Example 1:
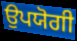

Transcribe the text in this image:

ਉਪਯੋਗੀ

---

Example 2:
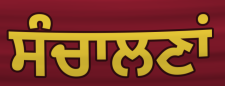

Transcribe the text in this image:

ਸੰਚਾਲਣਾਂ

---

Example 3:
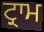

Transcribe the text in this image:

ਟ੍ਰਾਮ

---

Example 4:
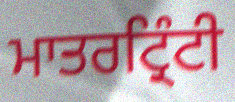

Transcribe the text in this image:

ਮਾਤਰਟ੍ਰਿੰਟੀ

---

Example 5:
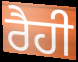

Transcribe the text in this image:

ਰੈਹੀ